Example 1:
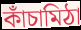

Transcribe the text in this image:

কাঁচামিঠা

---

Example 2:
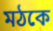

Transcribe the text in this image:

মঠকে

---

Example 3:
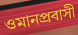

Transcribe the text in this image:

ওমানপ্রবাসী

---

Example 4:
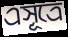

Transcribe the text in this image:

এসূত্রে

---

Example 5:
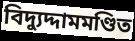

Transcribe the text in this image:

বিদ্যুদ্দামমণ্ডিত